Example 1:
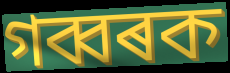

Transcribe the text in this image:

গব্বৰক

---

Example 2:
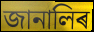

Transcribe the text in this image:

জানালিৰ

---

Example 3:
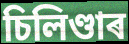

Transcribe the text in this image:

চিলিণ্ডাৰ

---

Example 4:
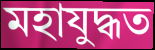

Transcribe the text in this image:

মহাযুদ্ধত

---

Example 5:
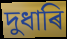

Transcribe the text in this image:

দুধাৰি